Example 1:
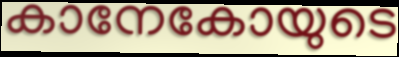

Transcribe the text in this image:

കാനേകോയുടെ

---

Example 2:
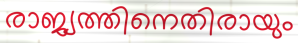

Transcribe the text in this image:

രാജ്യത്തിനെതിരായും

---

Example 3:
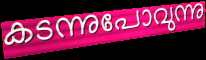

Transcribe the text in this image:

കടന്നുപോവുന്നു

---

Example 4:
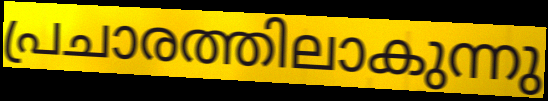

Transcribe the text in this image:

പ്രചാരത്തിലാകുന്നു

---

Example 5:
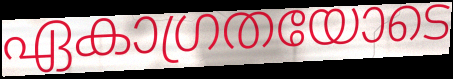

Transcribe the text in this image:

ഏകാഗ്രതയോടെ